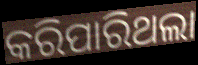
କରିପାରିଥଲା